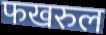
फखरुल